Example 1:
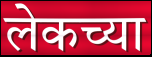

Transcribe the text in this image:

लेकच्या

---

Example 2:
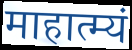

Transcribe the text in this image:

माहात्म्यं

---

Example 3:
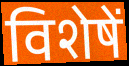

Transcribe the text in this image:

विशेषें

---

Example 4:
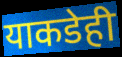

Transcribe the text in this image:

याकडेही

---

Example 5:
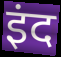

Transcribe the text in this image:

इंद